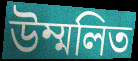
উম্মলিত